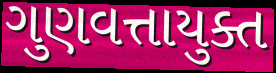
ગુણવત્તાયુક્ત